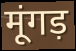
मूंगड़